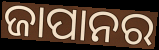
ଜାପାନର